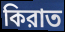
কিরাত